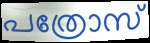
പത്രോസ്